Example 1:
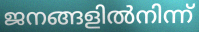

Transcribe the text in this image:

ജനങ്ങളിൽനിന്ന്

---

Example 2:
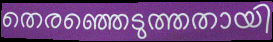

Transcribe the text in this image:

തെരഞ്ഞെടുത്തതായി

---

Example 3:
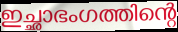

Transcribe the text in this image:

ഇച്ഛാഭംഗത്തിന്റെ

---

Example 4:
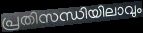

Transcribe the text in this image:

പ്രതിസന്ധിയിലാവും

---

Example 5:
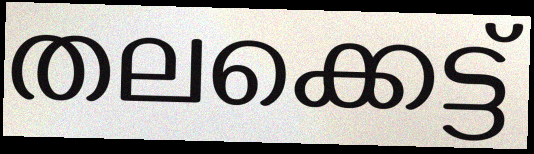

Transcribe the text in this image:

തലക്കെട്ട്